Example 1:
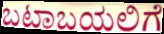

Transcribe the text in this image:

ಬಟಾಬಯಲಿಗೆ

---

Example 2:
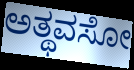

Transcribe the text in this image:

ಅತ್ಥವಸೋ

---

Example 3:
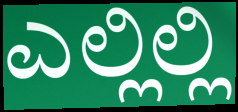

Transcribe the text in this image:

ಎಲ್ಲಿಲ್ಲಿ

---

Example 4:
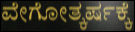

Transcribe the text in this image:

ವೇಗೋತ್ಕರ್ಷಕ್ಕೆ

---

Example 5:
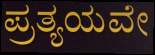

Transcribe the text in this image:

ಪ್ರತ್ಯಯವೇ